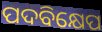
ପଦବିକ୍ଷେପ